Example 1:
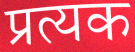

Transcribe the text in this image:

प्रत्यक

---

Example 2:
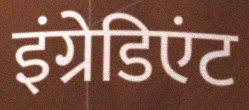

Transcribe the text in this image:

इंग्रेडिएंट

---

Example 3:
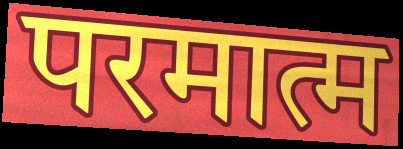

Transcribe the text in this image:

परमात्म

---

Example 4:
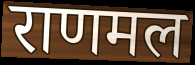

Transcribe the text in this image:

राणमल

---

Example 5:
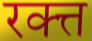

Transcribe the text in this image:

रक्त्त